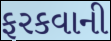
ફરકવાની